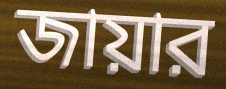
জায়ার